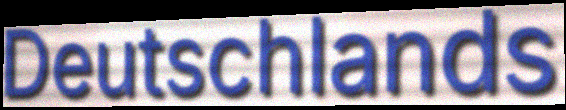
Deutschlands